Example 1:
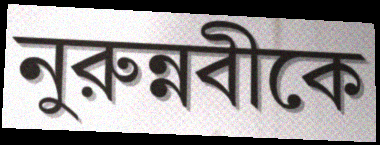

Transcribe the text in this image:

নুরুন্নবীকে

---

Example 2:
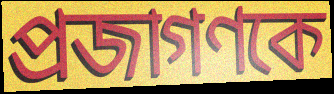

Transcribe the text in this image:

প্রজাগণকে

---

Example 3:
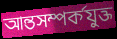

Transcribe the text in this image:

আন্তসম্পর্কযুক্ত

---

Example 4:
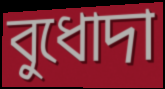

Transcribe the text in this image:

বুধোদা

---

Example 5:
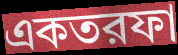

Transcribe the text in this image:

একতরফা